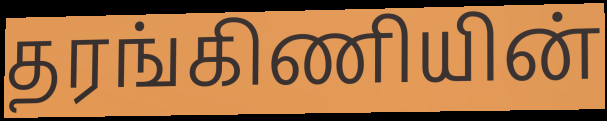
தரங்கிணியின்